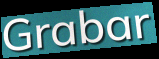
Grabar